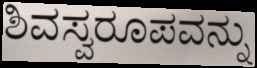
ಶಿವಸ್ವರೂಪವನ್ನು